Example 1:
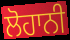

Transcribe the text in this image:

ਲੋਹਾਨੀ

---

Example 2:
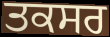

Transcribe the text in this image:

ਤਕਸਰ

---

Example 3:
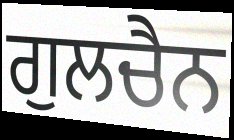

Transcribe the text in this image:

ਗੁਲਚੈਨ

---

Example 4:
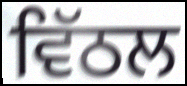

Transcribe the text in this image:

ਵਿੱਠਲ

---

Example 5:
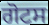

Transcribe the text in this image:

ਗੋਟਸ